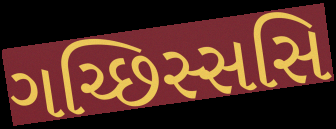
ગચ્છિસ્સસિ